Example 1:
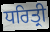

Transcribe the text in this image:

ਧਰਿਤ੍ਰੀ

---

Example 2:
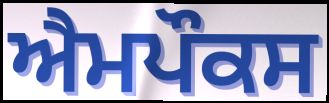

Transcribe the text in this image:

ਐਮਪੌਕਸ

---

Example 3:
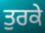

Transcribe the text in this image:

ਤੁਰਕੇ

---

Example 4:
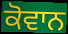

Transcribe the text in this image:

ਕੋਵਾਨ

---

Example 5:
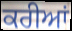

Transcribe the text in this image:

ਕਰੀਆਂ